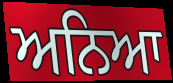
ਅਨਿਆ